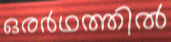
ഒരർഥത്തിൽ